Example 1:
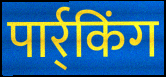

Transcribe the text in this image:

पार्र्किंग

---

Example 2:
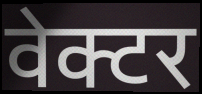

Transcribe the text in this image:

वेक्टर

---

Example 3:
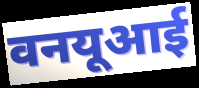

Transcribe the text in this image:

वनयूआई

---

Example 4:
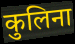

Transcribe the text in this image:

कुलिना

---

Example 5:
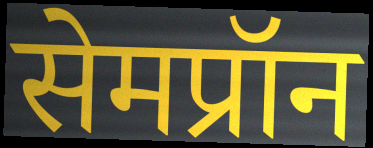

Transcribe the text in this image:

सेमप्रॉन